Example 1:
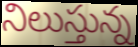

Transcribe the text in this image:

నిలుస్తున్న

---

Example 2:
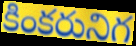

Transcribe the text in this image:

కింకరునిగ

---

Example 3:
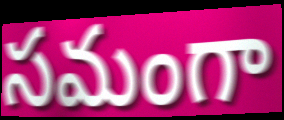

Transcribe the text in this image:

సమంగా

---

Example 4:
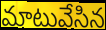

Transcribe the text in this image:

మాటువేసిన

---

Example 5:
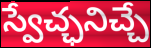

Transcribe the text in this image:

స్వేచ్ఛనిచ్చే